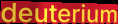
deuterium